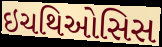
ઇચથિઓસિસ